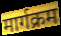
मार्गक्रम